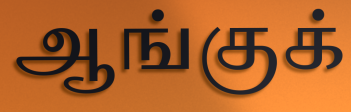
ஆங்குக்